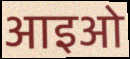
आइओ